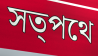
সত্পথে